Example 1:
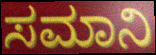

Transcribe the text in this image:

ಸಮಾನಿ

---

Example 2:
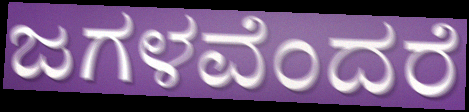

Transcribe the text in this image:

ಜಗಳವೆಂದರೆ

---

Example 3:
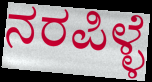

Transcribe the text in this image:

ನರಪಿಳ್ಳೆ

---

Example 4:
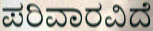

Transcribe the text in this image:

ಪರಿವಾರವಿದೆ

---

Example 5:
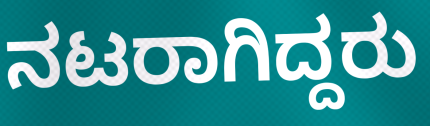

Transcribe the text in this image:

ನಟರಾಗಿದ್ದರು